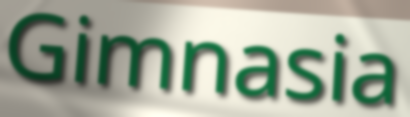
Gimnasia